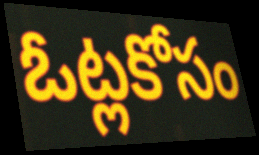
ఓట్లకోసం